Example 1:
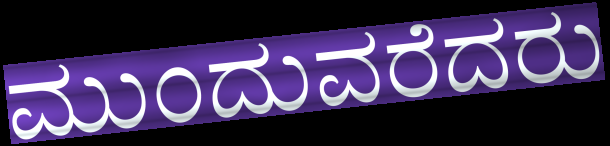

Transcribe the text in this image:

ಮುಂದುವರೆದರು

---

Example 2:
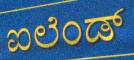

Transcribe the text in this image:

ಐಲೆಂಡ್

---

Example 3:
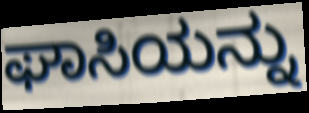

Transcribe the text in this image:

ಘಾಸಿಯನ್ನು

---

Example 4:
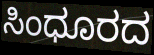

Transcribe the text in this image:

ಸಿಂಧೂರದ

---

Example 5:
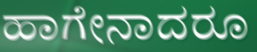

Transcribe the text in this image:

ಹಾಗೇನಾದರೂ